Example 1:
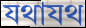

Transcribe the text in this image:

যথাযথ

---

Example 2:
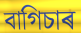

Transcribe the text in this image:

বাগিচাৰ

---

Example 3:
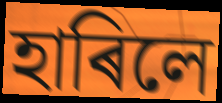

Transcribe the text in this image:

হাৰিলে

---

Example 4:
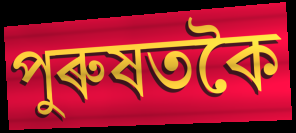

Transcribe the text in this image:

পুৰুষতকৈ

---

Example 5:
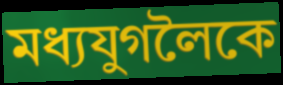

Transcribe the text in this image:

মধ্যযুগলৈকে